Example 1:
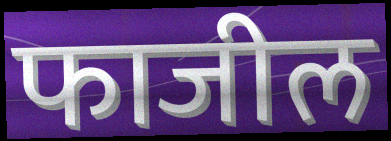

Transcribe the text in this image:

फाजील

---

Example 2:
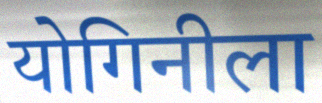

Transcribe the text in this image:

योगिनीला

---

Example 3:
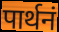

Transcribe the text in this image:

पार्थनं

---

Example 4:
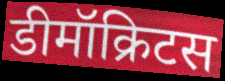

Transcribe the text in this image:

डीमॉक्रिटस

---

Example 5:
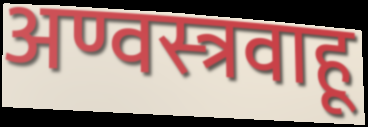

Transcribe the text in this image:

अण्वस्त्रवाहू